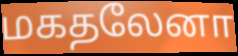
மகதலேனா